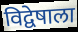
विद्वेषाला